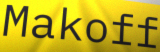
Makoff